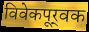
विवेकपूर्वक